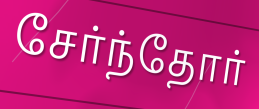
சேர்ந்தோர்